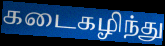
கடைகழிந்து